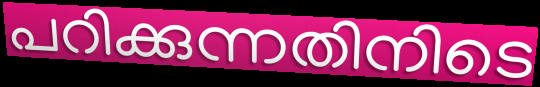
പറിക്കുന്നതിനിടെ